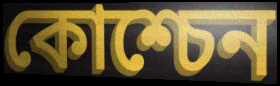
কোশ্চেন